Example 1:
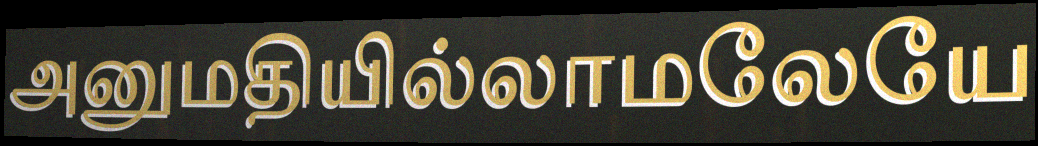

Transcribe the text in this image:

அனுமதியில்லாமலேயே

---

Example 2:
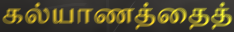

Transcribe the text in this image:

கல்யாணத்தைத்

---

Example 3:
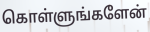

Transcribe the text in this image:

கொள்ளுங்களேன்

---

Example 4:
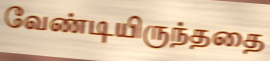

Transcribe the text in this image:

வேண்டியிருந்ததை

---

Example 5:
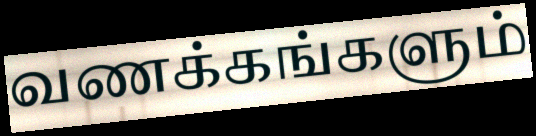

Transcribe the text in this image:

வணக்கங்களும்